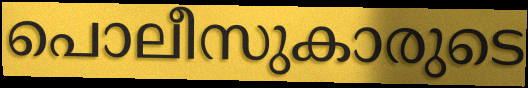
പൊലീസുകാരുടെ